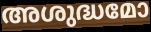
അശുദ്ധമോ